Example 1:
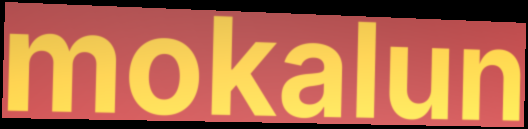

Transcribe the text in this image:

mokalun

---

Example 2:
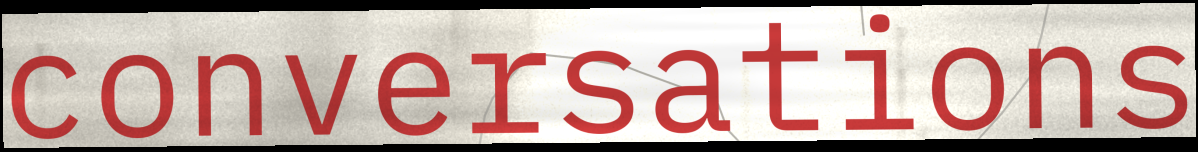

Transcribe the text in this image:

conversations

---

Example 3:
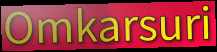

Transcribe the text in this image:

Omkarsuri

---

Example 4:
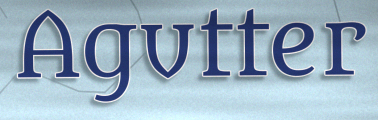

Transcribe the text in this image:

Agutter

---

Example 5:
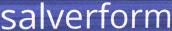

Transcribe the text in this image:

salverform